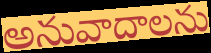
అనువాదాలను